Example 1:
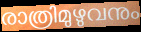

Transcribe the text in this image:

രാത്രിമുഴുവനും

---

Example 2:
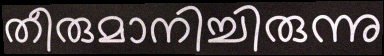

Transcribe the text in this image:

തീരുമാനിച്ചിരുന്നു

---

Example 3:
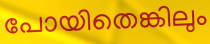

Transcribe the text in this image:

പോയിതെങ്കിലും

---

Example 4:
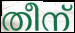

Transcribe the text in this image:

തീന്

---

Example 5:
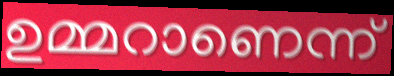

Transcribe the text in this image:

ഉമ്മറാണെന്ന്